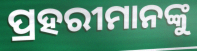
ପ୍ରହରୀମାନଙ୍କୁ